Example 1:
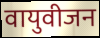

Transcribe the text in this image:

वायुवीजन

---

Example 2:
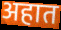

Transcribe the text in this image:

अहात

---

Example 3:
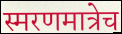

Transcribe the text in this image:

स्मरणमात्रेच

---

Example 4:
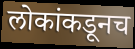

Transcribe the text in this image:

लोकांकडूनच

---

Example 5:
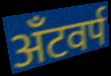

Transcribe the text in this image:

अँटवर्प